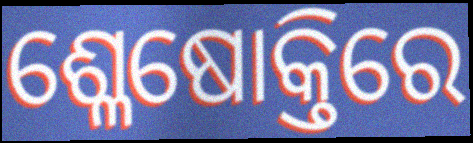
ଶ୍ଳେଷୋକ୍ତିରେ